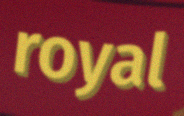
royal